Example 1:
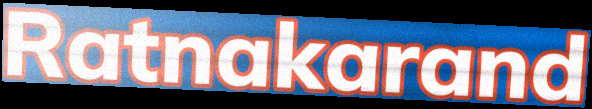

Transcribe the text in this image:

Ratnakarand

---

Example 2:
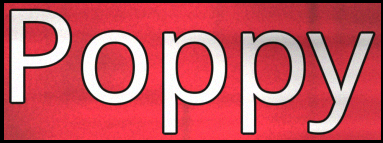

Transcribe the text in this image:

Poppy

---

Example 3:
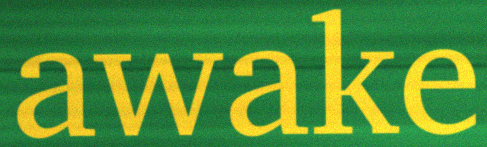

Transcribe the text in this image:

awake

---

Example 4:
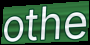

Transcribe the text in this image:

othe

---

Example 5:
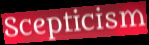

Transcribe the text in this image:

Scepticism